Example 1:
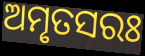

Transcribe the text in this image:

ଅମୃତସରଃ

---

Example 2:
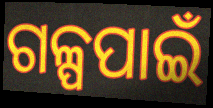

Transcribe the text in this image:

ଗଳ୍ପପାଇଁ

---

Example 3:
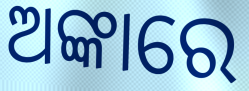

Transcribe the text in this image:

ଅଙ୍କାରେ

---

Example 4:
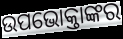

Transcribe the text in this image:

ଉପଭୋକ୍ତାଙ୍କର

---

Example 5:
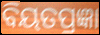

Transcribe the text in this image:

ବିୟତପ୍ରଜ୍ଞା